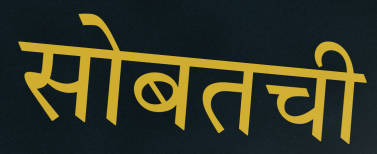
सोबतची